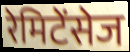
रेमिटेंसेज